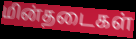
மின்தடைகள்